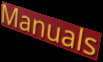
Manuals